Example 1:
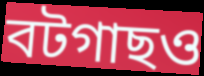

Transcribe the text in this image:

বটগাছও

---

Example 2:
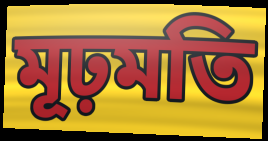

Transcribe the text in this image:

মূঢ়মতি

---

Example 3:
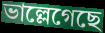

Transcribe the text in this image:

ভাল্লেগেছে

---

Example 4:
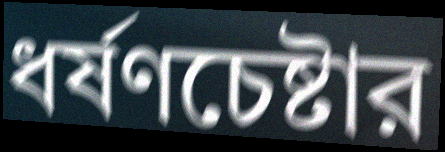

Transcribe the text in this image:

ধর্ষণচেষ্টার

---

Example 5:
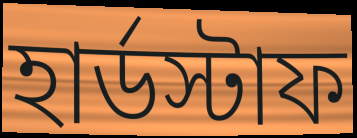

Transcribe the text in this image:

হার্ডস্টাফ